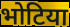
भोटिया